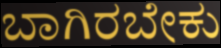
ಬಾಗಿರಬೇಕು